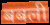
बबली